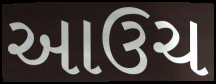
આઉચ